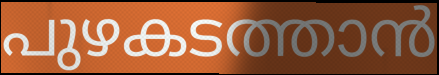
പുഴകടത്താൻ